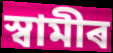
স্বামীৰ